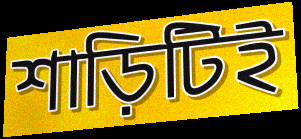
শাড়িটিই